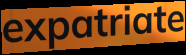
expatriate